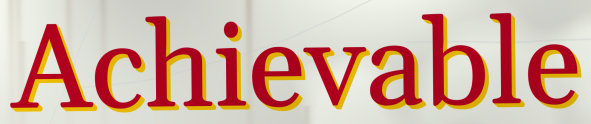
Achievable